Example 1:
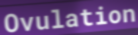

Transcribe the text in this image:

Ovulation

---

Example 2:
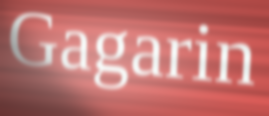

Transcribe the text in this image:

Gagarin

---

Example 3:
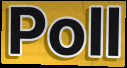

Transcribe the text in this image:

Poll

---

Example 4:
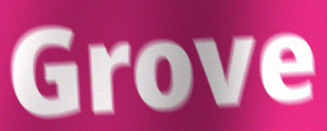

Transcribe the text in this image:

Grove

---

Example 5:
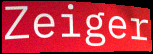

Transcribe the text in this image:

Zeiger